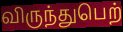
விருந்துபெற்